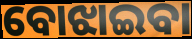
ବୋଝାଇବା